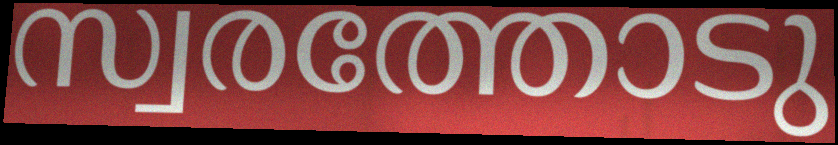
സ്വരത്തോടു